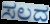
ಸಲದ